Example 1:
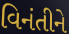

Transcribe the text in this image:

વિનંતીને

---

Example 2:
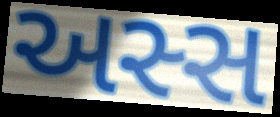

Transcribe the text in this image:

અસ્સ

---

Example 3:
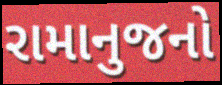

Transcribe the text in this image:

રામાનુજનો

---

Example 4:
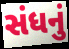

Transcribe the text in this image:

સંધનું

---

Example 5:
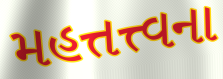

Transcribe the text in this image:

મહત્તત્ત્વના